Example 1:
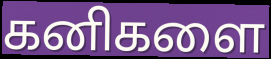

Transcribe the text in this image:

கனிகளை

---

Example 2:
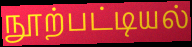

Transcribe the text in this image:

நூற்பட்டியல்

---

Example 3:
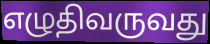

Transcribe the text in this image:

எழுதிவருவது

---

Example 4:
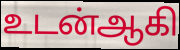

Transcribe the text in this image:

உடன்ஆகி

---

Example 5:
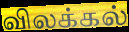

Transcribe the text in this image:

விலக்கல்